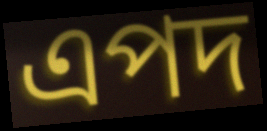
এপদ